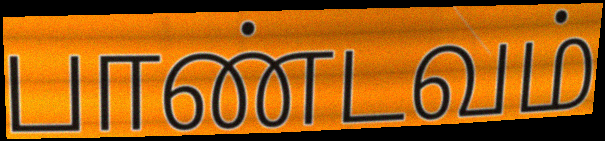
பாண்டவம்